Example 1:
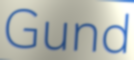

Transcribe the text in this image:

Gund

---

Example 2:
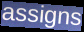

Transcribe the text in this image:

assigns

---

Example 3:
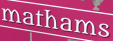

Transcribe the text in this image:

mathams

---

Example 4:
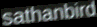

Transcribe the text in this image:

sathanbird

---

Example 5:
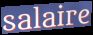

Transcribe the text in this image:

salaire